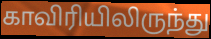
காவிரியிலிருந்து